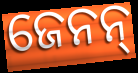
ଜେନନ୍